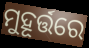
ମୁହୂର୍ତ୍ତରେ